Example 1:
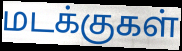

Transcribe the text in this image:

மடக்குகள்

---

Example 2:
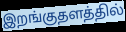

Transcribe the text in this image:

இறங்குதளத்தில்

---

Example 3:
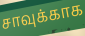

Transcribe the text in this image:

சாவுக்காக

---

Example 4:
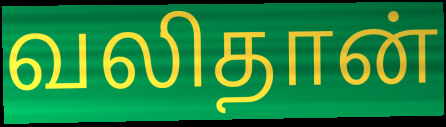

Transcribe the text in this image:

வலிதான்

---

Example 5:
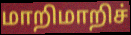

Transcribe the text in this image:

மாறிமாறிச்